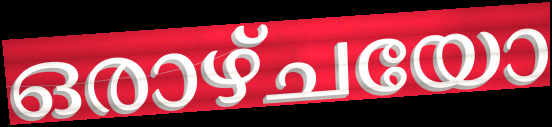
ഒരാഴ്ചയോ